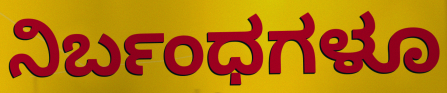
ನಿರ್ಬಂಧಗಳೂ